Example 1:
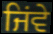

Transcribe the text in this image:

ਜਿਂਵੇ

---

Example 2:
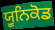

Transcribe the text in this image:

ਯੂਨਿਕੋਡ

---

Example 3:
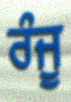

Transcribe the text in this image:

ਰੰਜੂ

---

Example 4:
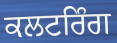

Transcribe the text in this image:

ਕਲਟਰਿੰਗ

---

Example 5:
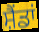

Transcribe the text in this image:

ਸ਼ੈਂਡਾਂ